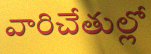
వారిచేతుల్లో